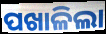
ପଖାଳିଲା